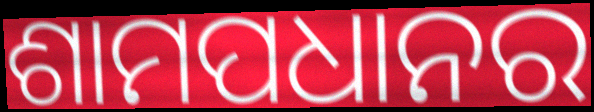
ଶାମପଧାନର